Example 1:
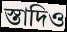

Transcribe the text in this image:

স্তাদিও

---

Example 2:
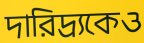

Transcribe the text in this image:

দারিদ্র্যকেও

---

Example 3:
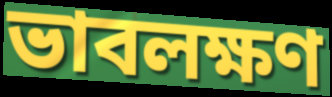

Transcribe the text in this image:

ভাবলক্ষণ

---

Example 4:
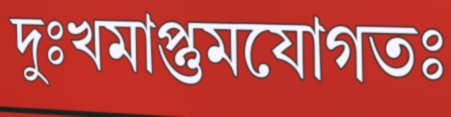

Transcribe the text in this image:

দুঃখমাপ্তুমযোগতঃ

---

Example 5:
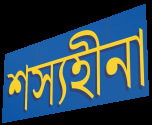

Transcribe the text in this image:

শস্যহীনা